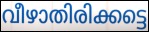
വീഴാതിരിക്കട്ടെ